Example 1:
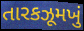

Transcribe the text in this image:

તારકઝૂમખું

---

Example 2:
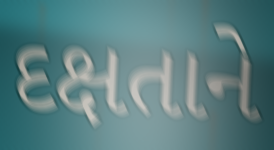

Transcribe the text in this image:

દક્ષતાને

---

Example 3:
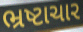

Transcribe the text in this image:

ભ્રષ્ટાચાર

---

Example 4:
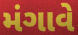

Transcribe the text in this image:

મંગાવે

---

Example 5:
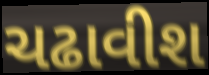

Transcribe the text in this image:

ચઢાવીશ